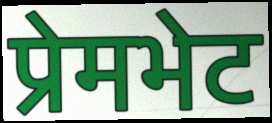
प्रेमभेट